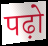
पढ़ो